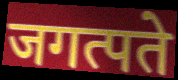
जगत्पते